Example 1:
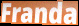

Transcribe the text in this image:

Franda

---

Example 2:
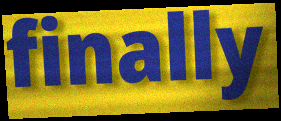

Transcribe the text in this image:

finally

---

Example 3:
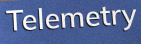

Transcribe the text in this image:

Telemetry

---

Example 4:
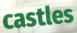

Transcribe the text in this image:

castles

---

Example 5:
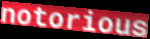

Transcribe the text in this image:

notorious